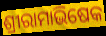
ଶ୍ରୀରାମାଭିଷେକ